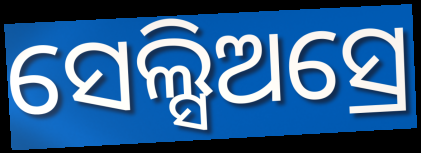
ସେଲ୍ସିଅସ୍ରେ